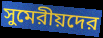
সুমেরীয়দের